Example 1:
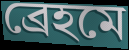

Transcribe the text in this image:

ব্রেহমে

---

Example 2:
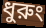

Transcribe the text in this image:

ধুরুং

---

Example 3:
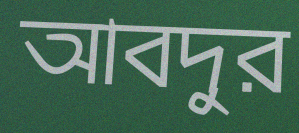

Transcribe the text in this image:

আবদুর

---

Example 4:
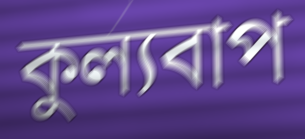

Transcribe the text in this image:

কুল্যবাপ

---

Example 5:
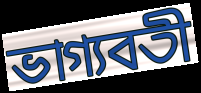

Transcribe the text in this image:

ভাগ্যবতী